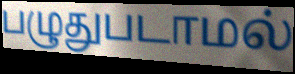
பழுதுபடாமல்